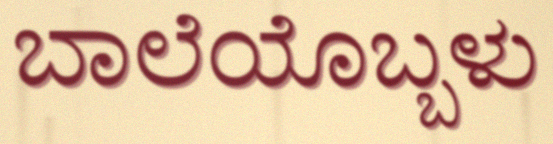
ಬಾಲೆಯೊಬ್ಬಳು